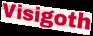
Visigoth